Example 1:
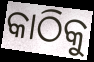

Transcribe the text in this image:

କାଠିକୁ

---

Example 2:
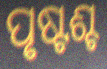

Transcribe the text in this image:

ପୃଷ୍ଟଶ୍ଚ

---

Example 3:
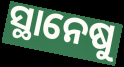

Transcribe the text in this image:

ସ୍ଥାନେଷୁ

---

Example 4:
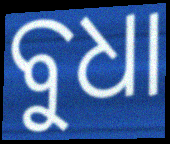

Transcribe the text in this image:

ବୁଧା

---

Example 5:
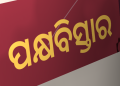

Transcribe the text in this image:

ପକ୍ଷବିସ୍ତାର